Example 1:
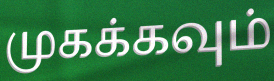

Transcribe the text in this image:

முகக்கவும்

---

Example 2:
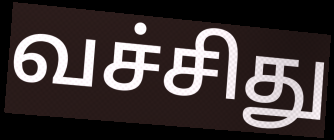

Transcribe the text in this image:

வச்சிது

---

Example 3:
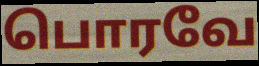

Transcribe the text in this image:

பொரவே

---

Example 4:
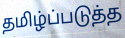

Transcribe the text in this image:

தமிழ்ப்படுத்த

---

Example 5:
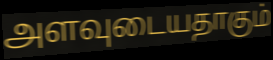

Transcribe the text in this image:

அளவுடையதாகும்